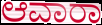
ಆವಾರಾ